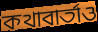
কথাবার্তাও